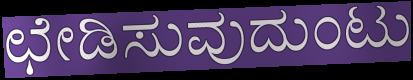
ಛೇಡಿಸುವುದುಂಟು